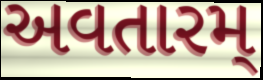
અવતારમ્